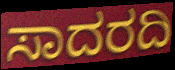
ಸಾದರದಿ